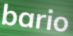
bario